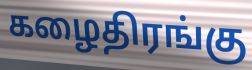
கழைதிரங்கு